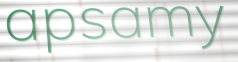
apsamy